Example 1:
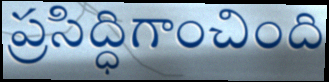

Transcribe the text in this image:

ప్రసిద్ధిగాంచింది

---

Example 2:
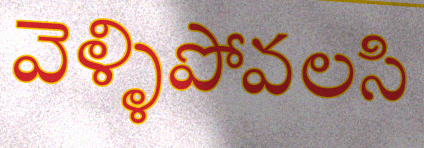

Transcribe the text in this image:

వెళ్ళిపోవలసి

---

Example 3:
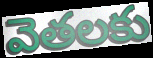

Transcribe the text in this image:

వెతలకు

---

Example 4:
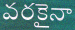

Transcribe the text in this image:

వరకైనా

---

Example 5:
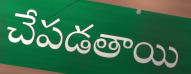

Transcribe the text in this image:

చేపడతాయి